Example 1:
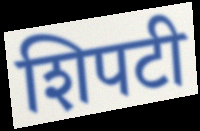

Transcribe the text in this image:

शिपटी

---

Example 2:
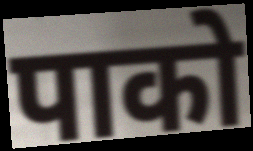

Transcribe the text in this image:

पाको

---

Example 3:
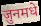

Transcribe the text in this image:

जुनमधे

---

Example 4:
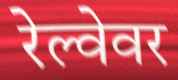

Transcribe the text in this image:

रेल्वेवर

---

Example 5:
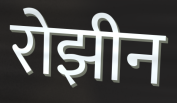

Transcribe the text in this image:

रोझीन